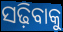
ସଢ଼ିବାକୁ